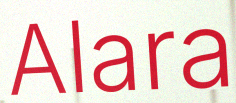
Alara